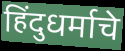
हिंदुधर्माचे